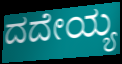
ದದೇಯ್ಯ